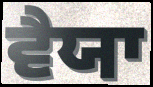
ਵੈਯਾ